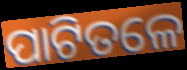
ପାଟିତଳେ